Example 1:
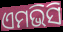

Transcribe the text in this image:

ଏମଭିସି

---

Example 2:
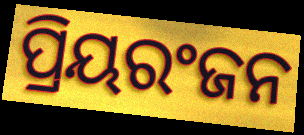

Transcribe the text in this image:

ପ୍ରିୟରଂଜନ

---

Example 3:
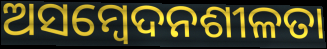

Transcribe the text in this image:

ଅସମ୍ବେଦନଶୀଳତା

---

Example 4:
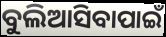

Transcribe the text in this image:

ବୁଲିଆସିବାପାଇଁ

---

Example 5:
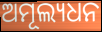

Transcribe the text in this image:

ଅମୂଲ୍ୟଧନ